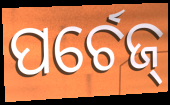
ପର୍ଚେଜ୍